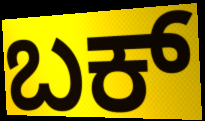
ಬಕ್